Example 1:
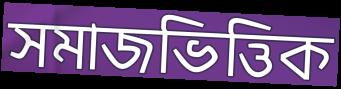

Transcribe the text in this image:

সমাজভিত্তিক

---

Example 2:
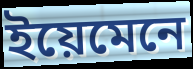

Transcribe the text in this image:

ইয়েমেনে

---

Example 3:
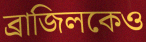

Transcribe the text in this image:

ব্রাজিলকেও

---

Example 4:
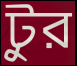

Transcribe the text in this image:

টুর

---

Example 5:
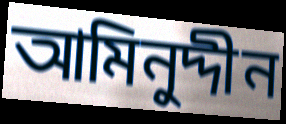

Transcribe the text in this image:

আমিনুদ্দীন